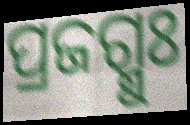
ପ୍ରଜଗ୍ମୁଃ